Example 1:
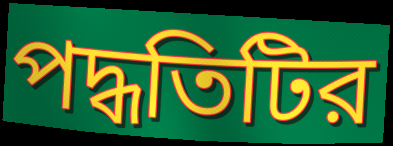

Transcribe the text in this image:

পদ্ধতিটির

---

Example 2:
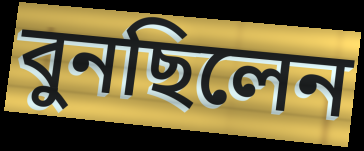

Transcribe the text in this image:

বুনছিলেন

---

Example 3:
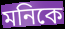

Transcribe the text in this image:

মনিকে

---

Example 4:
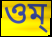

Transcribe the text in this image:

ওম্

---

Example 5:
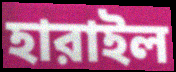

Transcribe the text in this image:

হারাইল